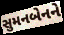
સુમનબેનને